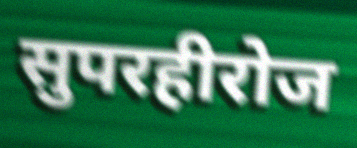
सुपरहीरोज